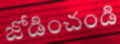
జోడించండి